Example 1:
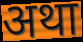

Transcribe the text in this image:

अथा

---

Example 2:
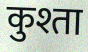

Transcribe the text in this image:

कुश्ता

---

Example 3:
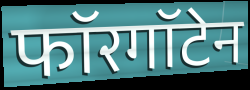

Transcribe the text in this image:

फॉरगॉटेन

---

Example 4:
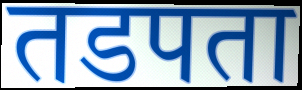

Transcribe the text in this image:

तडपता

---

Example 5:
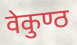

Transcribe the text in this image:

वेकुण्ठ